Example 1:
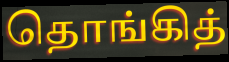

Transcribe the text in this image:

தொங்கித்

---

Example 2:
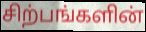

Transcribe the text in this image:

சிற்பங்களின்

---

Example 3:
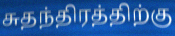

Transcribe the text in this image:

சுதந்திரத்திற்கு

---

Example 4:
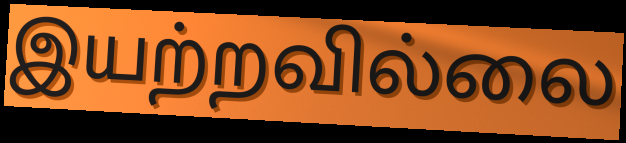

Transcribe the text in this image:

இயற்றவில்லை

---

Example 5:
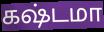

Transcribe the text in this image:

கஷ்டமா